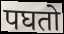
पघतो